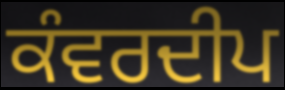
ਕੰਵਰਦੀਪ